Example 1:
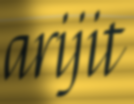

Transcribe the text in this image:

arijit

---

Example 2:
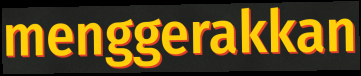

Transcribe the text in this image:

menggerakkan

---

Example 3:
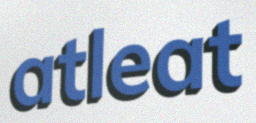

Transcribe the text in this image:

atleat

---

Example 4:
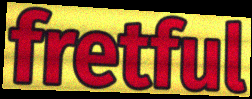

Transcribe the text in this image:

fretful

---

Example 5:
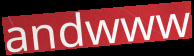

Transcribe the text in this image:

andwww